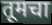
तूमचा